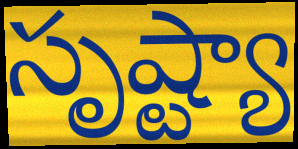
సృష్ట్యా